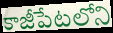
కాజీపేటలోని